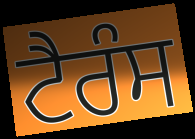
ਟੈਰੰਸ